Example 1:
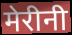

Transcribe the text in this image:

मेरीनी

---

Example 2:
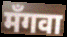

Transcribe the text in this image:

मँगवा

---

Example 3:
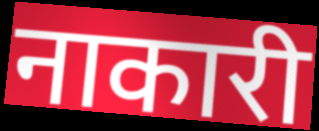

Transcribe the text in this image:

नाकारी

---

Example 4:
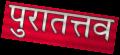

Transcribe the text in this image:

पुरातत्तव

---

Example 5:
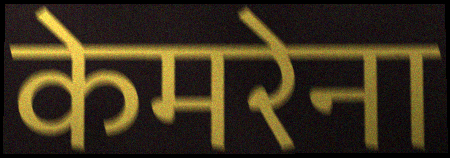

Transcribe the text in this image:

केमरेना